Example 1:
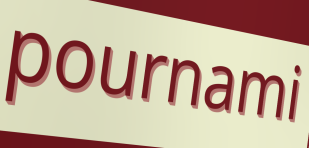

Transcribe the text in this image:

pournami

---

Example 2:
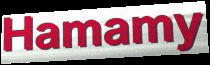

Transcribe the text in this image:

Hamamy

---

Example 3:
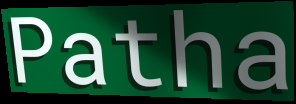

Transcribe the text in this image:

Patha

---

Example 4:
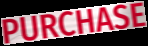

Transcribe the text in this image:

PURCHASE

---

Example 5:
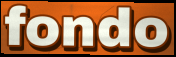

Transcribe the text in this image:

fondo